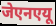
जेएनएयू